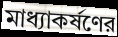
মাধ্যাকর্ষণের